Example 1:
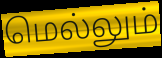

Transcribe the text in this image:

மெல்லும்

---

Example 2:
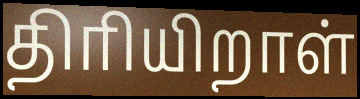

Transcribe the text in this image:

திரியிறாள்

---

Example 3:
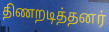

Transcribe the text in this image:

திணறடித்தனர்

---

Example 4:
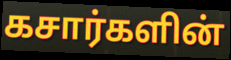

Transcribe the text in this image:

கசார்களின்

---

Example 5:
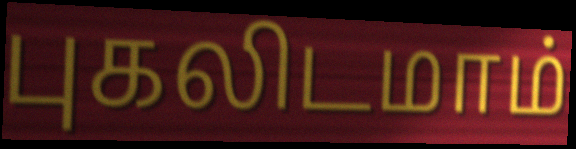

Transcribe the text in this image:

புகலிடமாம்